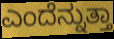
ಎಂದೆನ್ನುತ್ತಾ